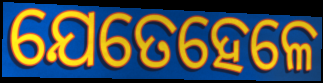
ଯେତେହେଳେ